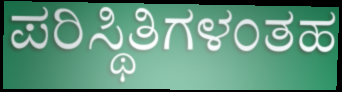
ಪರಿಸ್ಥಿತಿಗಳಂತಹ